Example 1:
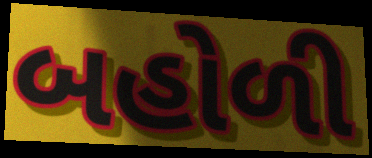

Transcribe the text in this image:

બહોળી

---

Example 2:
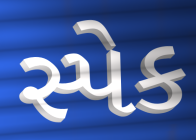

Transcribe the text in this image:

સ્પેક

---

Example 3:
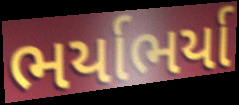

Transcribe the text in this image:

ભર્યાભર્યા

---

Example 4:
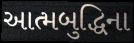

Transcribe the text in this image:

આત્મબુદ્ધિના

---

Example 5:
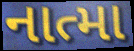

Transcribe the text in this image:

નાત્મા